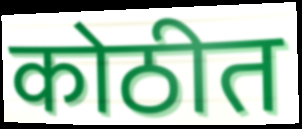
कोठीत